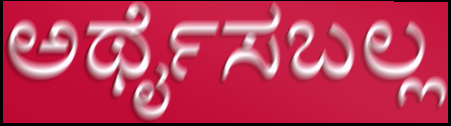
ಅರ್ಥೈಸಬಲ್ಲ